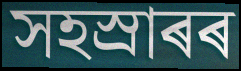
সহস্ৰাৰৰ